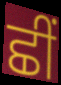
ਛੀਂ